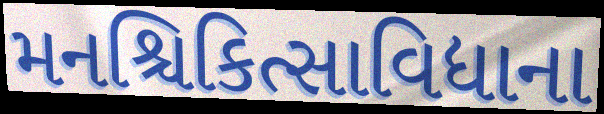
મનશ્ચિકિત્સાવિદ્યાના